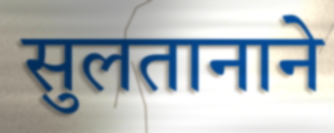
सुलतानाने